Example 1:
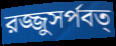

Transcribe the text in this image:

রজ্জুসর্পবত্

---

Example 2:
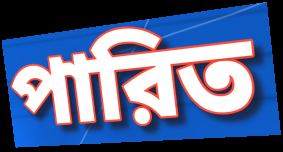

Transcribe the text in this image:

পারিত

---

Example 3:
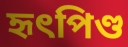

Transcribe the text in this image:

হৃৎপিণ্ড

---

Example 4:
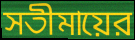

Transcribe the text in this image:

সতীমায়ের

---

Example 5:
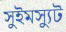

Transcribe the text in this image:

সুইমস্যুট